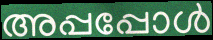
അപ്പപ്പോൾ